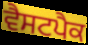
ਵੈਸਟਪੈਕ